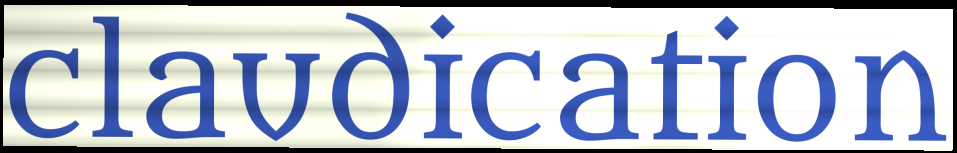
claudication